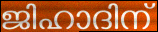
ജിഹാദിന്